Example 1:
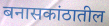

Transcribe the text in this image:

बनासकांठातील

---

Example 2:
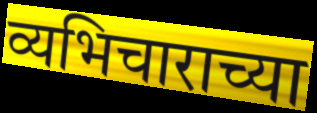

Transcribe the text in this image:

व्यभिचाराच्या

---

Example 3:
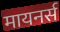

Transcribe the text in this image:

मायनर्स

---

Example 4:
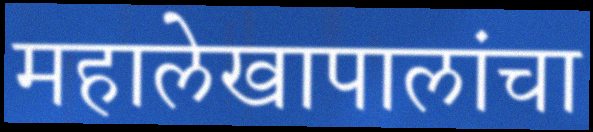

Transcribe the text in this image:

महालेखापालांचा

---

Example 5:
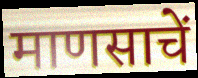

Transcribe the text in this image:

माणसाचें